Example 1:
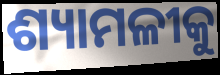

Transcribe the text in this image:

ଶ୍ୟାମଳୀକୁ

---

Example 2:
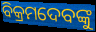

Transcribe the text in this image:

ବିକ୍ରମଦେବଙ୍କୁ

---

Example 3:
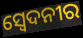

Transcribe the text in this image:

ସ୍ୱେଦନୀର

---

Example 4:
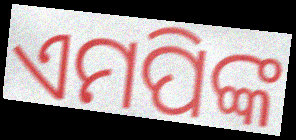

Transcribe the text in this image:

ଏମପିଙ୍କ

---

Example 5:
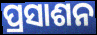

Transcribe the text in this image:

ପ୍ରସାଶନ